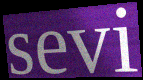
sevi